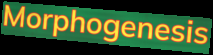
Morphogenesis